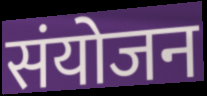
संयोजन